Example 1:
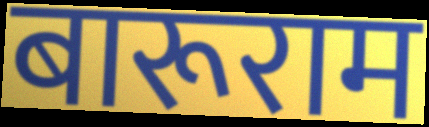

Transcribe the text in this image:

बारूराम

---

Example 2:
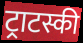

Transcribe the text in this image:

ट्राटस्की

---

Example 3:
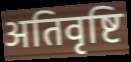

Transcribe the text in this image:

अतिवृष्टि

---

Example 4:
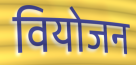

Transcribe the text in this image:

वियोजन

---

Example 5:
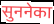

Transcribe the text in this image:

सुननेका